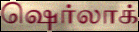
ஷெர்லாக்